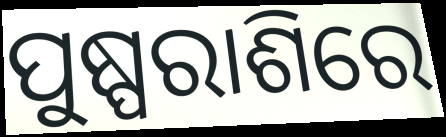
ପୁଷ୍ପରାଶିରେ